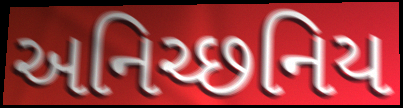
અનિચ્છનિય